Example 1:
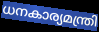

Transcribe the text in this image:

ധനകാര്യമന്ത്രി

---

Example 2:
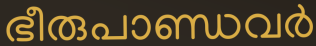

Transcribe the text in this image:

ഭീരുപാണ്ഡവർ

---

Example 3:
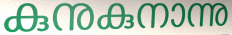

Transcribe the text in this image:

കുനുകുനാന്നു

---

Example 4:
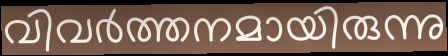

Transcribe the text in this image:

വിവർത്തനമായിരുന്നു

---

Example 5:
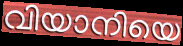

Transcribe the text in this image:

വിയാനിയെ